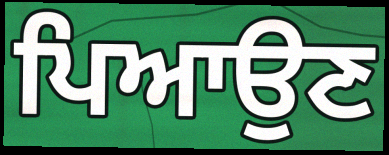
ਪਿਆਉਣ